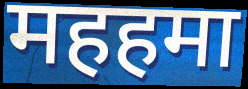
महहमा